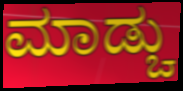
ಮಾಡ್ಚು